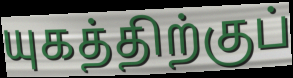
யுகத்திற்குப்